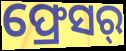
ଫ୍ରେସର୍